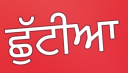
ਛੁੱਟੀਆ